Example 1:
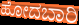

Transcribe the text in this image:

ಹೋದಬಾರಿ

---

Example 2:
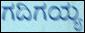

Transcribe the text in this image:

ಗದಿಗಯ್ಯ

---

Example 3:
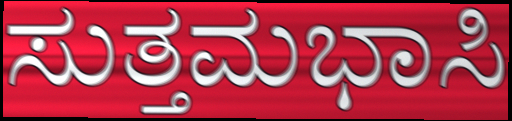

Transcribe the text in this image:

ಸುತ್ತಮಭಾಸಿ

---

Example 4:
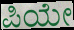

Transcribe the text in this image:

ಪಿಯೇ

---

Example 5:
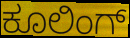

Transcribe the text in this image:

ಕೂಲಿಂಗ್